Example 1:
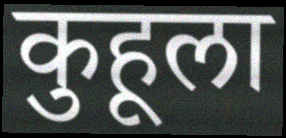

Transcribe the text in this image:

कुहूला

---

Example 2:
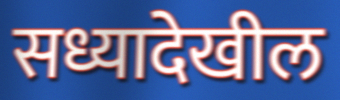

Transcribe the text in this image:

सध्यादेखील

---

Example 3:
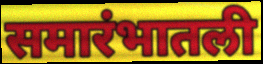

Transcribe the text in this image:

समारंभातली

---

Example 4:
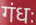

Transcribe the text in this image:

गंधः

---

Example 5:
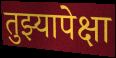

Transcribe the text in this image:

तुझ्यापेक्षा